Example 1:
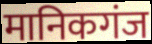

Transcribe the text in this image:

मानिकगंज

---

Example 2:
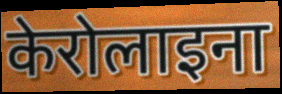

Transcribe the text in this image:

केरोलाइना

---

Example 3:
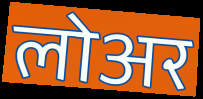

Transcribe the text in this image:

लोअर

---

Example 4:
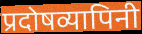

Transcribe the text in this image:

प्रदोषव्यापिनी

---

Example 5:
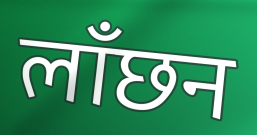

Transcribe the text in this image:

लाँछन